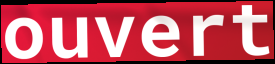
ouvert